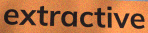
extractive